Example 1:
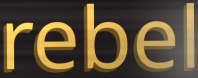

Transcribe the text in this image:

rebel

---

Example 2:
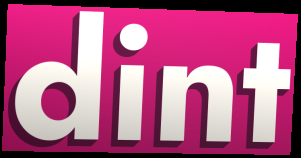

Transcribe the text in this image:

dint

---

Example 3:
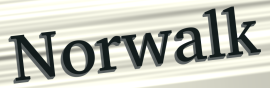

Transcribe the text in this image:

Norwalk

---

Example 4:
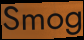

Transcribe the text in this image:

Smog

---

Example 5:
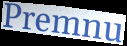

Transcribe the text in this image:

Premnu